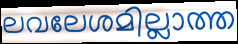
ലവലേശമില്ലാത്ത